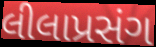
લીલાપ્રસંગ